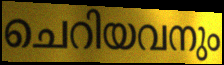
ചെറിയവനും